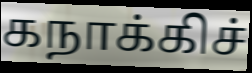
கநாக்கிச்